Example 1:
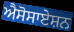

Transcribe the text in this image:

ਐਸੋਸਾਏਸ਼ਨ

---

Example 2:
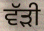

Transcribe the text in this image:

ਵੱੜੀ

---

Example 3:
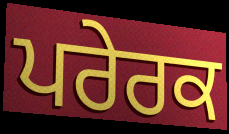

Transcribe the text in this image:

ਪਰੇਰਕ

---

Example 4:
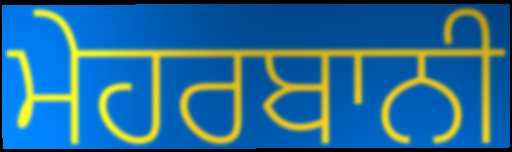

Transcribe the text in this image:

ਮੇਹਰਬਾਨੀ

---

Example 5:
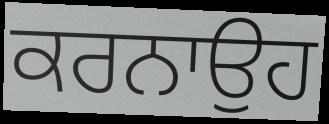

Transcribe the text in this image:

ਕਰਨਾਉਹ